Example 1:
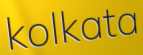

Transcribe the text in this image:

kolkata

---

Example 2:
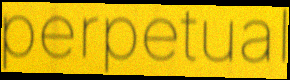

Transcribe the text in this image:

perpetual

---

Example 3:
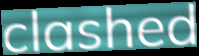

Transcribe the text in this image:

clashed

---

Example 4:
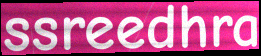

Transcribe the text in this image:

ssreedhra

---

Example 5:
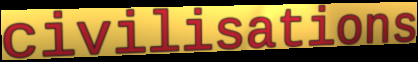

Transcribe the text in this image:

civilisations